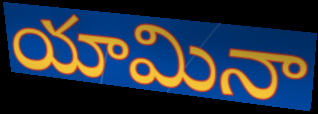
యామినా